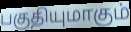
பகுதியுமாகும்